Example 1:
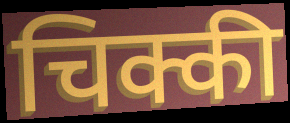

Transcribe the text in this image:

चिक्की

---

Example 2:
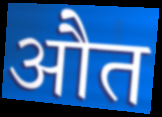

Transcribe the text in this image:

औत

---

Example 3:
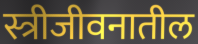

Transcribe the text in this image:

स्त्रीजीवनातील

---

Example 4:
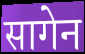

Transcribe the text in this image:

सागेन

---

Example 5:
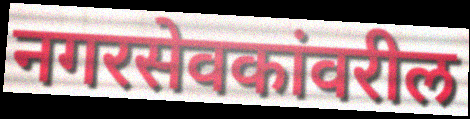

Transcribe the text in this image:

नगरसेवकांवरील